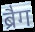
ब्रैग